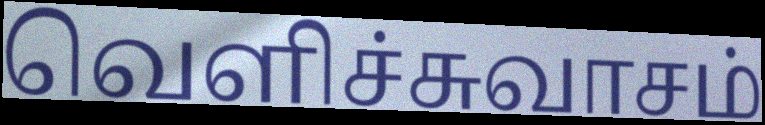
வெளிச்சுவாசம்